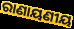
ରାଣାୟଣୀୟ